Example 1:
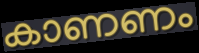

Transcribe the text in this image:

കാണണം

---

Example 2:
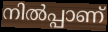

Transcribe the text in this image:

നിൽപ്പാണ്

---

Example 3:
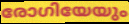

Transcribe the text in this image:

രോഗിയേയും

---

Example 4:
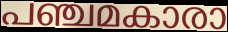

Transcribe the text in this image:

പഞ്ചമകാരാ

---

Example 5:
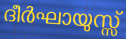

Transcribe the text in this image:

ദീർഘായുസ്സ്